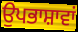
ਉਪਭਾਸ਼ਾਵਾਂ